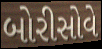
બોરીસોવે